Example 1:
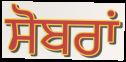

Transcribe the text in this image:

ਸੋਬਰਾਂ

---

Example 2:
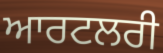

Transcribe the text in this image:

ਆਰਟਲਰੀ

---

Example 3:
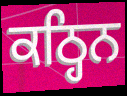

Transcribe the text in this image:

ਕਠ੍ਹਿਨ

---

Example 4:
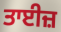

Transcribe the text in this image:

ਤਾਈਜ਼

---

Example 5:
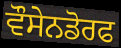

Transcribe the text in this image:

ਵੌਸੇਨਡੋਰਫ